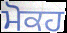
ਮੋਕਹ